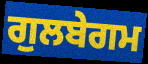
ਗੁਲਬੇਗਮ